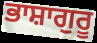
ਭਾਸ਼ਾਗੁਰੂ